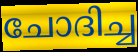
ചോദിച്ച